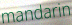
mandarin